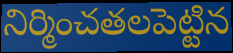
నిర్మించతలపెట్టిన